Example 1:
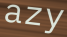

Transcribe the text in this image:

azy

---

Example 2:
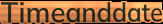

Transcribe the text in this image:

Timeanddate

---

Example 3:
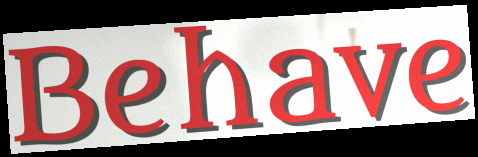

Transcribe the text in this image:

Behave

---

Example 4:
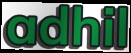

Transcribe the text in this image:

adhil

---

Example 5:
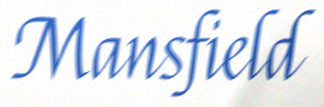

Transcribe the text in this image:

Mansfield